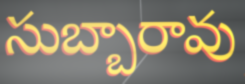
సుబ్బారావు